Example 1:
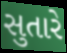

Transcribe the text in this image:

સુતારે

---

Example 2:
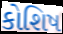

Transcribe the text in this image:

કોશિષ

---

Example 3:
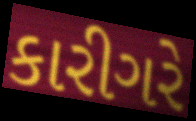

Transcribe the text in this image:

કારીગરે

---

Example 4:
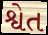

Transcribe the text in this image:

શ્વેત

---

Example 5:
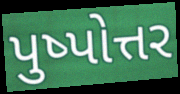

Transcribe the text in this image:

પુષ્પોત્તર